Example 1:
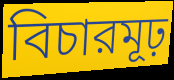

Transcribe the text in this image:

বিচারমূঢ়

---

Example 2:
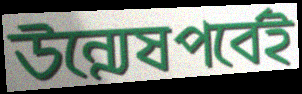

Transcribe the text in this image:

উন্মেষপর্বেই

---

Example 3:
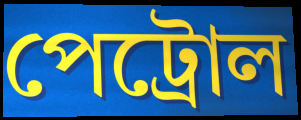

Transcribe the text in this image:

পেট্রোল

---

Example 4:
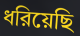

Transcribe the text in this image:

ধরিয়েছি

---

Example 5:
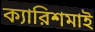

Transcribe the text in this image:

ক্যারিশমাই